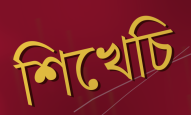
শিখেচি